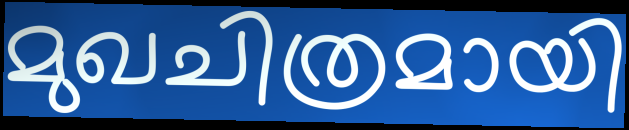
മുഖചിത്രമായി